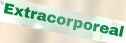
Extracorporeal